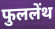
फुललेंथ